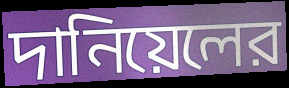
দানিয়েলের